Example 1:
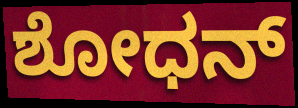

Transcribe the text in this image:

ಶೋಧನ್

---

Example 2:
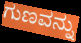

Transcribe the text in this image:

ಗುಣವನ್ನು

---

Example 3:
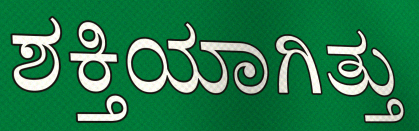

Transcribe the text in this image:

ಶಕ್ತಿಯಾಗಿತ್ತು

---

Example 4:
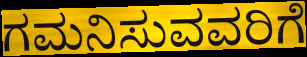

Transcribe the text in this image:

ಗಮನಿಸುವವರಿಗೆ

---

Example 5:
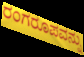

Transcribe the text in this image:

ರಂಗರೂಪವನ್ನು